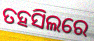
ତହସିଲରେ